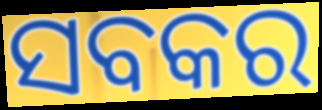
ସବକର